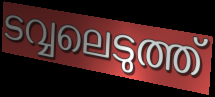
ടവ്വലെടുത്ത്